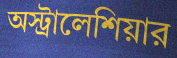
অস্ট্রালেশিয়ার